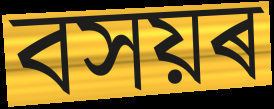
বসয়ৰ